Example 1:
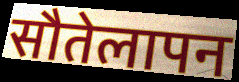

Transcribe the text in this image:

सौतेलापन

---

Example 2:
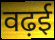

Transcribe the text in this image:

वढ़ई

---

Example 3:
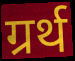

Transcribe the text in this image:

ग्रर्थ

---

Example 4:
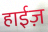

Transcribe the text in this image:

हाईज़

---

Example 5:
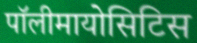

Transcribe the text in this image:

पॉलीमायोसिटिस